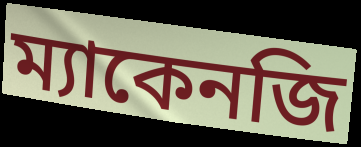
ম্যাকেনজি